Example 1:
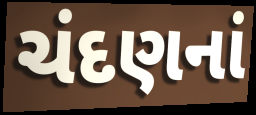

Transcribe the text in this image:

ચંદણનાં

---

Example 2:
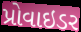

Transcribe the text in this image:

પ્રોવાઇડર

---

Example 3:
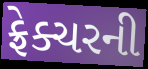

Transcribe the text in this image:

ફ્રેક્ચરની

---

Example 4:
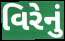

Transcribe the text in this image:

વિરેનું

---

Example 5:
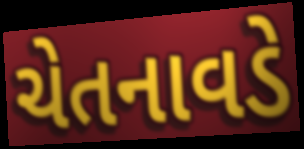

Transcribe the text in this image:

ચેતનાવડે